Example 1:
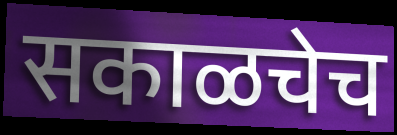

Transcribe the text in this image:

सकाळचेच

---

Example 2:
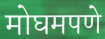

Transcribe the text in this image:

मोघमपणे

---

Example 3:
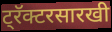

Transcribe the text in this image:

ट्रॅक्टरसारखी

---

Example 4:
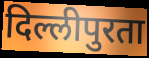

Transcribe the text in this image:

दिल्लीपुरता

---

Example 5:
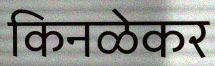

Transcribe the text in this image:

किनळेकर